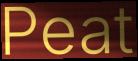
Peat